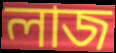
লাজ